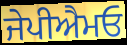
ਜੇਪੀਐਮਓ